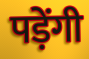
पड़ेंगी